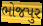
ભોજપુર